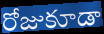
రోజుకూడా